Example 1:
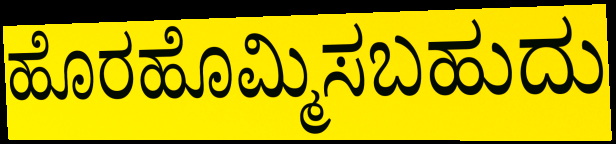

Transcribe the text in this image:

ಹೊರಹೊಮ್ಮಿಸಬಹುದು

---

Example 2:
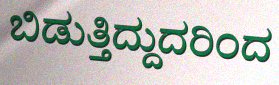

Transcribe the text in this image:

ಬಿಡುತ್ತಿದ್ದುದರಿಂದ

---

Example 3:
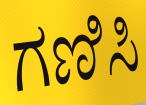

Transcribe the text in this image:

ಗಣಿಸಿ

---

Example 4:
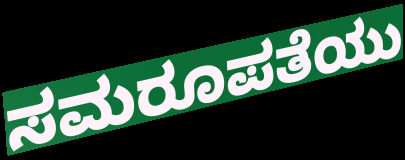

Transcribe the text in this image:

ಸಮರೂಪತೆಯು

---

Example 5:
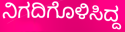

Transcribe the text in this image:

ನಿಗದಿಗೊಳಿಸಿದ್ದ